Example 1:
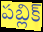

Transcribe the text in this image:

పబ్లిక్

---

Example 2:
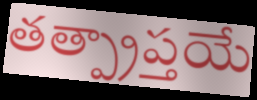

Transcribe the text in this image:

తత్ప్రాప్తయే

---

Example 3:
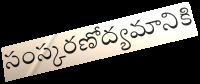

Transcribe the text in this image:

సంస్కరణోద్యమానికి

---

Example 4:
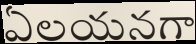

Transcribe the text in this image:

ఏలయనగా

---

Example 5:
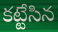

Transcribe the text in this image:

కట్టేసిన